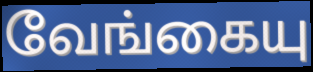
வேங்கையு